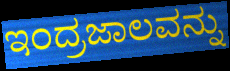
ಇಂದ್ರಜಾಲವನ್ನು